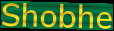
Shobhe